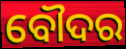
ବୌଦର